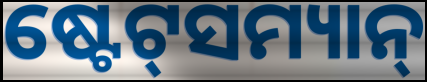
ଷ୍ଟେଟ୍‌ସମ୍ୟାନ୍